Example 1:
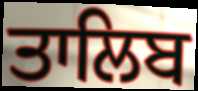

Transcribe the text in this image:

ਤਾਲਿਬ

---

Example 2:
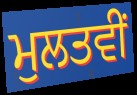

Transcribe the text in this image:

ਮੁਲਤਵੀਂ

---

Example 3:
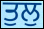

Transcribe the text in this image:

ਤੁਲੁ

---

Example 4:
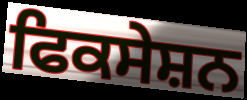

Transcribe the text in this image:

ਫਿਕਸੇਸ਼ਨ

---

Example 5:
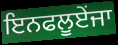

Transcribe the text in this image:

ਇਨਫਲੂਏਂਜਾ